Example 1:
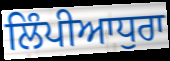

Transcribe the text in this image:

ਲਿੰਪੀਆਧੁਰਾ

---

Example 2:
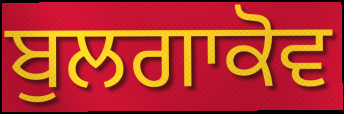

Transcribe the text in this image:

ਬੁਲਗਾਕੋਵ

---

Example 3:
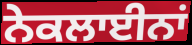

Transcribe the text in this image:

ਨੇਕਲਾਈਨਾਂ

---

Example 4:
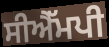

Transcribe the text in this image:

ਸੀਐੱਮਪੀ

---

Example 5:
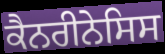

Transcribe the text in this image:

ਕੈਨਰੀਨੇਸਿਸ